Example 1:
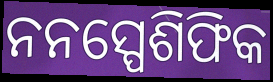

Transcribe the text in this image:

ନନସ୍ପେଶିଫିକ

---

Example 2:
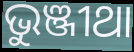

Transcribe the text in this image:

ଭୁଞ୍ଜୀଥା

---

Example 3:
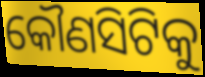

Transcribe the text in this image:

କୌଣସିଟିକୁ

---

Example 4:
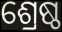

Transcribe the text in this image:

ଶ୍ରେଷ୍ଠ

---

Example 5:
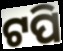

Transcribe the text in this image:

ଟପି